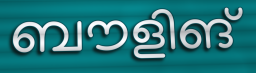
ബൗളിങ്